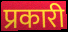
प्रकारी